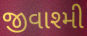
જીવાશ્મી